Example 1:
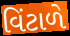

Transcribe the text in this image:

વિંટાળે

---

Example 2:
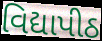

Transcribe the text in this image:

વિદ્યાપીઠ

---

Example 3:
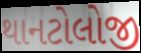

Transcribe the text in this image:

થાનટોલોજી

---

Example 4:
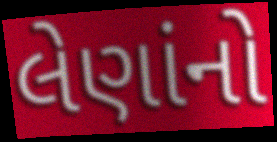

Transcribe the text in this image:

લેણાંનો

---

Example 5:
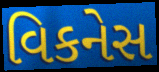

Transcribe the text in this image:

વિકનેસ